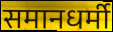
समानधर्मी